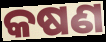
କଷଣ